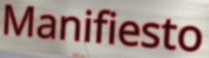
Manifiesto